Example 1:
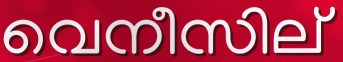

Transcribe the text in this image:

വെനീസില്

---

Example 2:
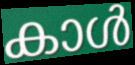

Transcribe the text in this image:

കാൾ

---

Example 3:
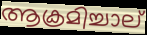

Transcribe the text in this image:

ആക്രമിച്ചാല്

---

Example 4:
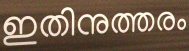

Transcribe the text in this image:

ഇതിനുത്തരം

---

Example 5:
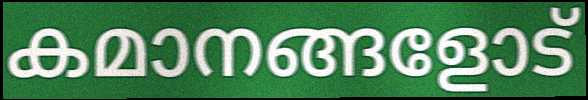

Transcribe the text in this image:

കമാനങ്ങളോട്